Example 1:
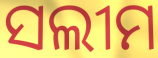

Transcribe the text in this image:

ସଲୀମ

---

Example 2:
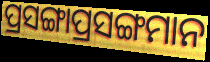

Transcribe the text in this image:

ପ୍ରସଙ୍ଗାପ୍ରସଙ୍ଗମାନ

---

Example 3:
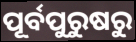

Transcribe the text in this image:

ପୂର୍ବପୁରୁଷରୁ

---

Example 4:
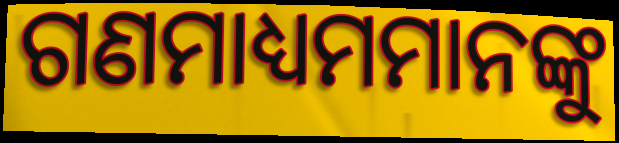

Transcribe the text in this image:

ଗଣମାଧ୍ୟମମାନଙ୍କୁ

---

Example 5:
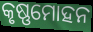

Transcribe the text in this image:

କୃଷ୍ଣମୋହନ